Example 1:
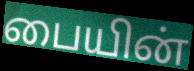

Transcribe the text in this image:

பையின்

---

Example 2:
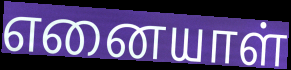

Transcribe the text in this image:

எனையாள்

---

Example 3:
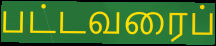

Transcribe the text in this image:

பட்டவரைப்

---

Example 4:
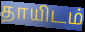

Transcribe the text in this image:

தாயிடம்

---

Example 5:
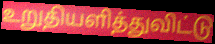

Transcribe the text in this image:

உறுதியளித்துவிட்டு